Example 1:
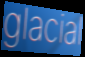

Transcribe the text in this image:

glacial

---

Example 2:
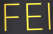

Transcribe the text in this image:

FEI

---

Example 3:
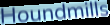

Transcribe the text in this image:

Houndmills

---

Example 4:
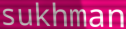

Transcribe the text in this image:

sukhman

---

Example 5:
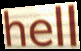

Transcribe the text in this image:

hell